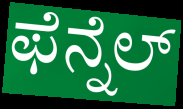
ಫೆನ್ನೆಲ್